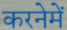
करनेमें